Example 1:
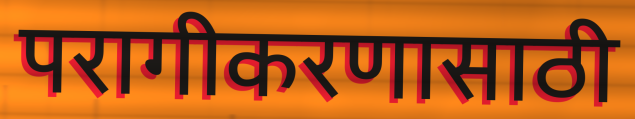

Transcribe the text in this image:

परागीकरणासाठी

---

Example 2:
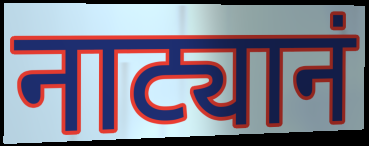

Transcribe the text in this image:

नाट्यानं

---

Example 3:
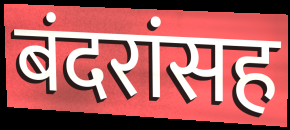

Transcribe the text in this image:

बंदरांसह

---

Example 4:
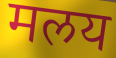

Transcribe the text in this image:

मलय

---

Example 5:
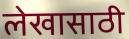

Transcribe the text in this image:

लेखासाठी